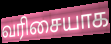
வரிசையாக